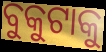
ବୁକୁଟାକୁ